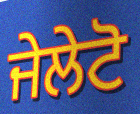
ਜੇਲੇਟੋ